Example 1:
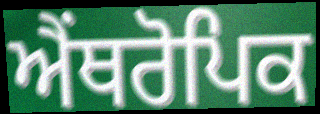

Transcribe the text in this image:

ਐਂਥਰੋਪਿਕ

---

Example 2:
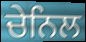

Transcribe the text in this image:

ਚੇਨਿਲ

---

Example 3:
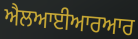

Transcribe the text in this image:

ਐਲਆਈਆਰਆਰ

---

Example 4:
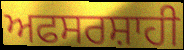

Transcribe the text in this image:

ਅਫਸਰਸ਼ਾਹੀ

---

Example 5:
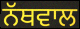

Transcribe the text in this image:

ਨੱਥਵਾਲ